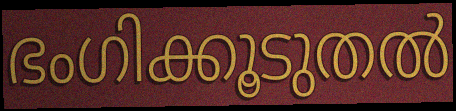
ഭംഗിക്കൂടുതൽ